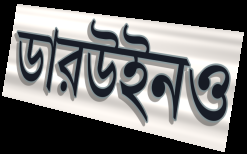
ডারউইনও